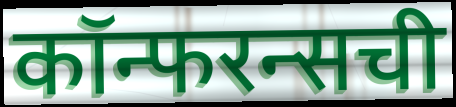
कॉन्फरन्सची